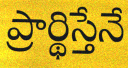
ప్రార్థిస్తేనే